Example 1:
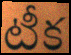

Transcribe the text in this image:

టీక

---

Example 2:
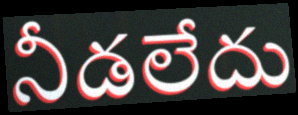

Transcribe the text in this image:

నీడలేదు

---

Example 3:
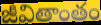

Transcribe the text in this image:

జీవితాంతం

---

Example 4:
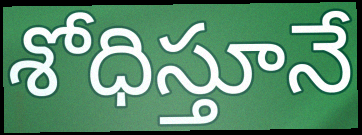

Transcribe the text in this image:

శోధిస్తూనే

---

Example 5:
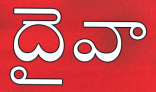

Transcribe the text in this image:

దైవా